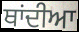
ਥਾਂਦੀਆ